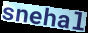
snehal